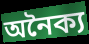
অনৈক্য